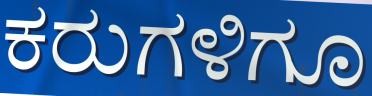
ಕರುಗಳಿಗೂ